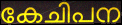
കേചിപന